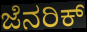
ಜೆನರಿಕ್